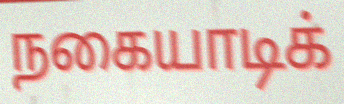
நகையாடிக்